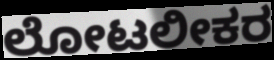
ಲೋಟಲೀಕರ